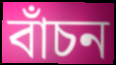
বাঁচন